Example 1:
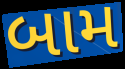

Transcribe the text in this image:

બામ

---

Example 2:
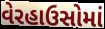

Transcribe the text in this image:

વેરહાઉસોમાં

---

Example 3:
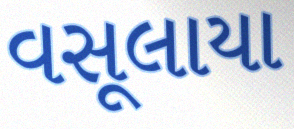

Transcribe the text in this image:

વસૂલાયા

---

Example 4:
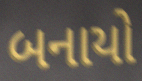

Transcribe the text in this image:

બનાયો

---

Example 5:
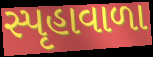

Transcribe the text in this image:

સ્પૃહાવાળા